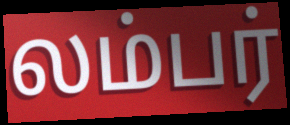
லம்பர்